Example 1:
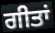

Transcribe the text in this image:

ਗੀਤਾਂ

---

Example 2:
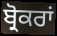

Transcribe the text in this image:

ਬ੍ਰੋਕਰਾਂ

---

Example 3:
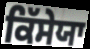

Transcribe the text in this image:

ਕਿੱਸੇਯਾ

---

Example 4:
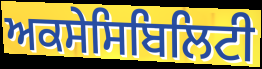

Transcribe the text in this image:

ਅਕਸੇਸਿਬਿਲਿਟੀ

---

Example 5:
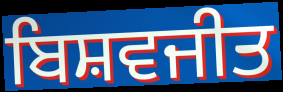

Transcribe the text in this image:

ਬਿਸ਼ਵਜੀਤ